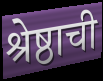
श्रेष्ठाची